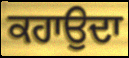
ਕਹਾਉਦਾ